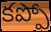
కప్పో